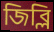
জিব্লি